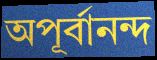
অপূর্বানন্দ